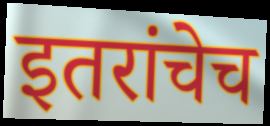
इतरांचेच